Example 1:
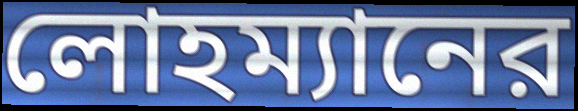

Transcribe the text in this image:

লোহম্যানের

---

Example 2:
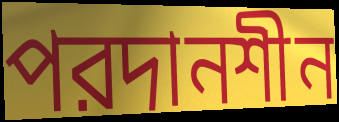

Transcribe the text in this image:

পরদানশীন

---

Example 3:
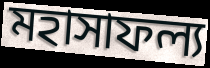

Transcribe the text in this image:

মহাসাফল্য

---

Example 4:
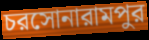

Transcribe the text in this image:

চরসোনারামপুর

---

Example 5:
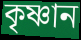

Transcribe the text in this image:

কৃষ্ণান